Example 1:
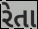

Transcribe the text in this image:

રેતા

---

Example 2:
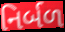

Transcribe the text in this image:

નિર્બળ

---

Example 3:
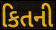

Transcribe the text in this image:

કિતની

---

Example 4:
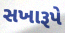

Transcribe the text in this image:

સખારૂપે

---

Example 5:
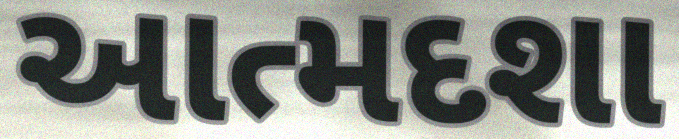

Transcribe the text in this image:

આત્મદશા